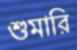
শুমারি